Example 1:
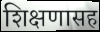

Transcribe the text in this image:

शिक्षणासह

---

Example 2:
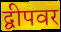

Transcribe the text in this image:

द्वीपवर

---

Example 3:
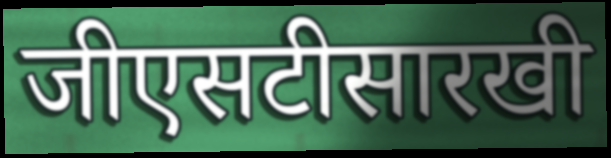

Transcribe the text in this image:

जीएसटीसारखी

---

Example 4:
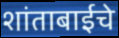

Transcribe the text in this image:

शांताबाईचे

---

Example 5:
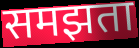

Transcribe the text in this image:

समझता